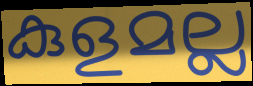
കുളമല്ല